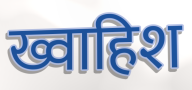
ख्वाहिश